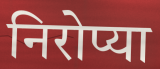
निरोप्या